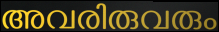
അവരിരുവരും